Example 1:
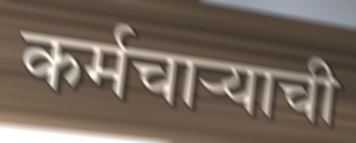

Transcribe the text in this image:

कर्मचाऱ्याची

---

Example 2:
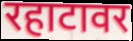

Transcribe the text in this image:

रहाटावर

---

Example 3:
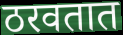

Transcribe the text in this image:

ठरवतात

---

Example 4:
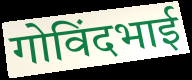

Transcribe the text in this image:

गोविंदभाई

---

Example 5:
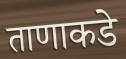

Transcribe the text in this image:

ताणाकडे